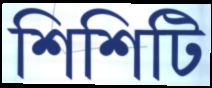
শিশিটি